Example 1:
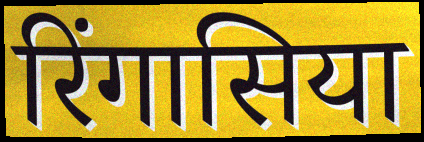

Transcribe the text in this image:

रिंगासिया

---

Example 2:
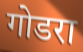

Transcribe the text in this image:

गोडरा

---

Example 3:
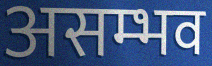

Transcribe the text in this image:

असम्भव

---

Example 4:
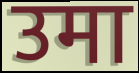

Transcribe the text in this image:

उमा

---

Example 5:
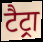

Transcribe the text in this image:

टैट्रा